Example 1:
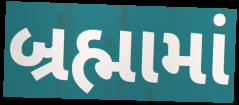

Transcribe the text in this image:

બ્રહ્મામાં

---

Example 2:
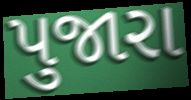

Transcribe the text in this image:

પુજારા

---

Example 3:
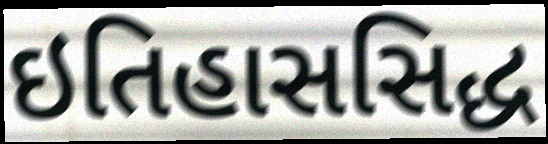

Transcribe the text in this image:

ઇતિહાસસિદ્ધ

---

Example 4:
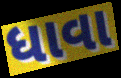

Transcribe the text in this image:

ધાવા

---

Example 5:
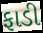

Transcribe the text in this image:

ફાડી